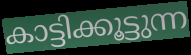
കാട്ടിക്കൂട്ടുന്ന